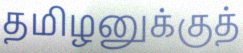
தமிழனுக்குத்